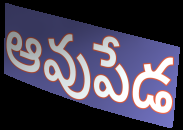
ఆవుపేడ